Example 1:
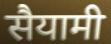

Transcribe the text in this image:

सैयामी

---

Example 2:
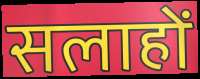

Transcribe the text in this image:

सलाहों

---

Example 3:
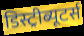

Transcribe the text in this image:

डिस्ट्रीब्यूटर्स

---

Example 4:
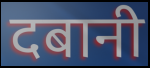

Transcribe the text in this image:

दबानी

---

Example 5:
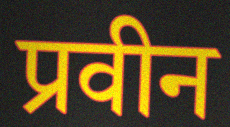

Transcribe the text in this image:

प्रवीन